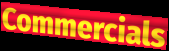
Commercials